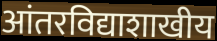
आंतरविद्याशाखीय